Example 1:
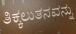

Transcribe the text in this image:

ತಿಕ್ಕಲುತನವನ್ನು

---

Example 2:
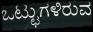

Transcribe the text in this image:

ಒಟ್ಟುಗಳಿರುವ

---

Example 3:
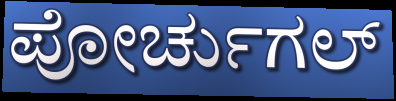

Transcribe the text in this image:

ಪೋರ್ಚುಗಲ್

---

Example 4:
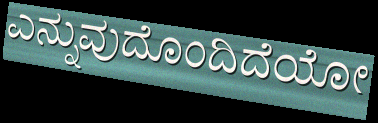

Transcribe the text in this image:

ಎನ್ನುವುದೊಂದಿದೆಯೋ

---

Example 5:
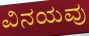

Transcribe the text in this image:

ವಿನಯವು